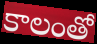
కాలంతో